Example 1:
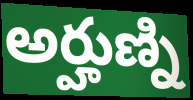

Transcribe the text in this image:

అర్హుణ్ని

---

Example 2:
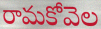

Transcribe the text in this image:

రామకోవెల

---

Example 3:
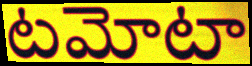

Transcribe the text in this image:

టమోటా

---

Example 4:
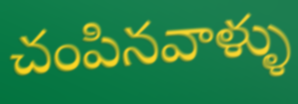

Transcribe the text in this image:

చంపినవాళ్ళు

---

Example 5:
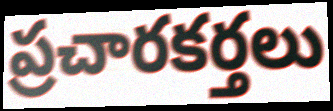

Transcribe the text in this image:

ప్రచారకర్తలు